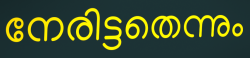
നേരിട്ടതെന്നും